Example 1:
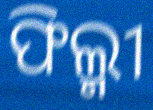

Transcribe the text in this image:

ଫିଲ୍ମୀ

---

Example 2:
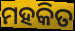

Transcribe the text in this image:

ମହକିତ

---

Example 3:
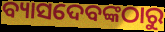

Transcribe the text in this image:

ବ୍ୟାସଦେବଙ୍କଠାରୁ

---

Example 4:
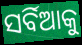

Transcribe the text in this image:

ସର୍ବିଆକୁ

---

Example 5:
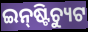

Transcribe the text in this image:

ଇନ୍‌ଷ୍ଟିଚ୍ୟୁଟ